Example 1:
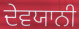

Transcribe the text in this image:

ਦੇਵਯਾਨੀ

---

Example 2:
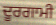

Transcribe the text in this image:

ਦੂਰਗਾਮੀ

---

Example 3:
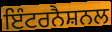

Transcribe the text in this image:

ਇੰਟਰਨੈਸ਼ਨਲ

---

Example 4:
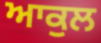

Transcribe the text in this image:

ਆਕੁਲ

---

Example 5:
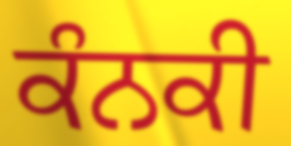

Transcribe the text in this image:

ਕੰਨਕੀ